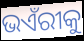
ଭଏଁରୀକୁ